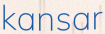
kansar